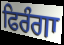
ਫਿਰੰਗਾ